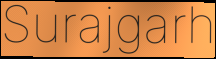
Surajgarh